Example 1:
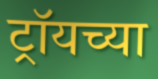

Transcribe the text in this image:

ट्रॉयच्या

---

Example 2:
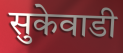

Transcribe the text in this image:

सुकेवाडी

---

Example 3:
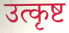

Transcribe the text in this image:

उत्कृष्ट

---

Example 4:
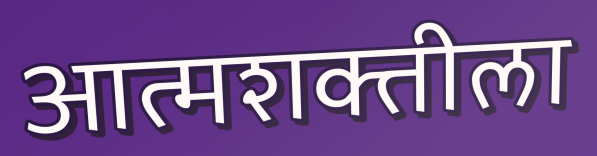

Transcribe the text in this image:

आत्मशक्तीला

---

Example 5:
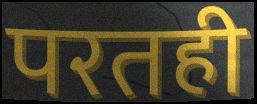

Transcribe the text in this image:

परतही